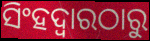
ସିଂହଦ୍ୱାରଠାରୁ